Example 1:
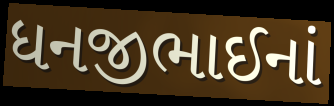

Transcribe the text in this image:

ધનજીભાઈનાં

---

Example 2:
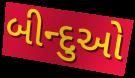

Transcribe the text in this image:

બીન્દુઓ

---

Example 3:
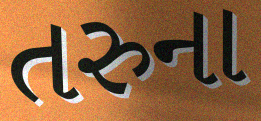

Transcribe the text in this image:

તરુના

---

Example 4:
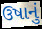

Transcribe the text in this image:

ઉષાનું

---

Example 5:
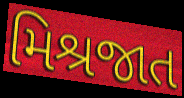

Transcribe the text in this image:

મિશ્રજાત